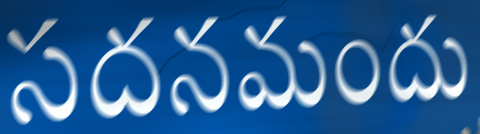
సదనమందు